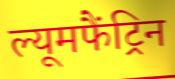
ल्यूमफैंट्रिन